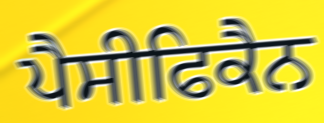
ਪੈਸੀਫਿਕੈਨ